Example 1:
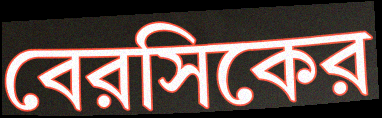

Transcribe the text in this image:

বেরসিকের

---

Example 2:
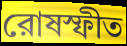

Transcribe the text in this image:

রোষস্ফীত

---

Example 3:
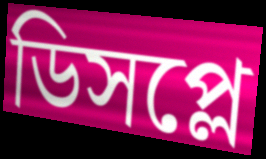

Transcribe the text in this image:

ডিসপ্লে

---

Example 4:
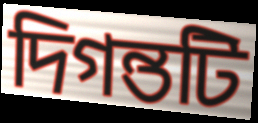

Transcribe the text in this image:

দিগন্তটি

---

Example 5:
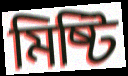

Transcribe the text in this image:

মিষ্টি